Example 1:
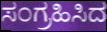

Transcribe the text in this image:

ಸಂಗ್ರಹಿಸಿದ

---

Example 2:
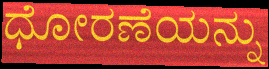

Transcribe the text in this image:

ಧೋರಣೆಯನ್ನು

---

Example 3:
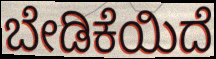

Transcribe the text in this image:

ಬೇಡಿಕೆಯಿದೆ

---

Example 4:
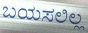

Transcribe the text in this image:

ಬಯಸಲಿಲ್ಲ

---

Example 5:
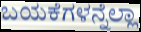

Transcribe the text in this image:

ಬಯಕೆಗಳನ್ನೆಲ್ಲಾ